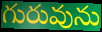
గురువును